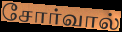
சோர்வால்